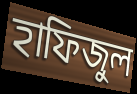
হাফিজুল